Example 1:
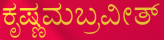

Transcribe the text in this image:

ಕೃಷ್ಣಮಬ್ರವೀತ್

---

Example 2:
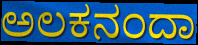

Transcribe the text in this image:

ಅಲಕನಂದಾ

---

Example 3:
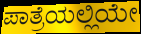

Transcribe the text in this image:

ಪಾತ್ರೆಯಲ್ಲಿಯೇ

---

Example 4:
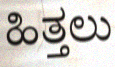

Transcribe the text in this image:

ಹಿತ್ತಲು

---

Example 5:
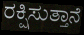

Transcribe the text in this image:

ರಕ್ಷಿಸುತ್ತಾನೆ